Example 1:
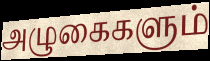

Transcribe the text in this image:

அழுகைகளும்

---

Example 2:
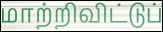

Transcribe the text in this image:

மாற்றிவிட்டுப்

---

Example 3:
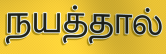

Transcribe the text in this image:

நயத்தால்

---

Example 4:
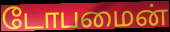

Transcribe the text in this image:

டோபமைன்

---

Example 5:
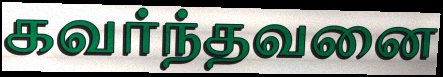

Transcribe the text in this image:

கவர்ந்தவனை